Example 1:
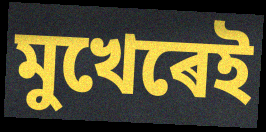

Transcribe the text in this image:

মুখেৰেই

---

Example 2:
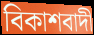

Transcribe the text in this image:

বিকাশবাদী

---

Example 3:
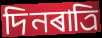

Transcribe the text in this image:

দিনৰাত্ৰি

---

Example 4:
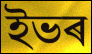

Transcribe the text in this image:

ইভৰ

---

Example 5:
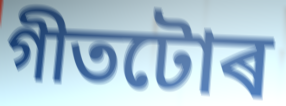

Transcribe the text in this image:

গীতটোৰ